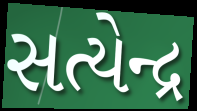
સત્યેન્દ્ર